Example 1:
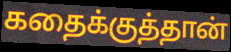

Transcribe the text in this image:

கதைக்குத்தான்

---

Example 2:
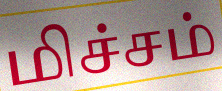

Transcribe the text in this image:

மிச்சம்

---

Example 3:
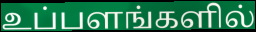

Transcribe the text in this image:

உப்பளங்களில்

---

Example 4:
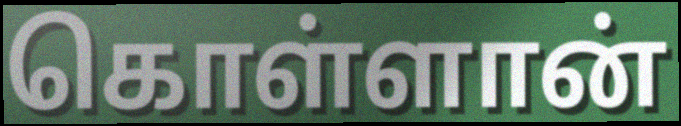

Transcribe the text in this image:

கொள்ளான்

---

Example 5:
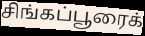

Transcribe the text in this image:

சிங்கப்பூரைக்